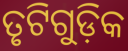
ତୃଟିଗୁଡ଼ିକ